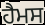
ਹੈਮਸ